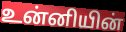
உன்னியின்